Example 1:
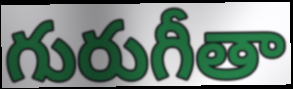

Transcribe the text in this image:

గురుగీతా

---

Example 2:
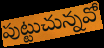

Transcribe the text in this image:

పుట్టుచున్నవో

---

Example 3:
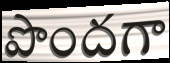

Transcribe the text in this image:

పొందగా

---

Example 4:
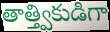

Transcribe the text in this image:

తాత్త్వికుడిగా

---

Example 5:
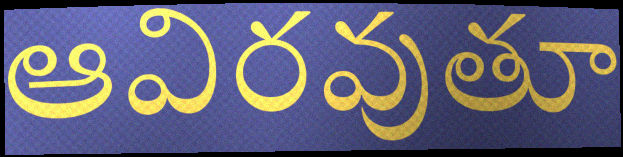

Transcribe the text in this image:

ఆవిరవుతూ